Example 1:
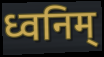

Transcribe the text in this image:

ध्वनिम्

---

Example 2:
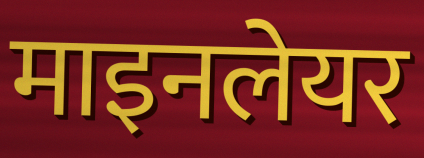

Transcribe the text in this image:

माइनलेयर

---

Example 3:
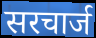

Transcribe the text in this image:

सरचार्ज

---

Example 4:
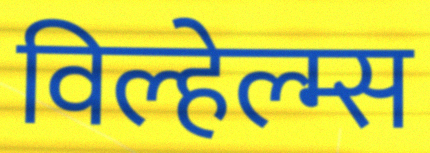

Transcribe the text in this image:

विल्हेल्म्स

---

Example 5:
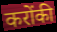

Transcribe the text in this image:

करोंकी